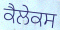
ਕੈਲੇਕਸ